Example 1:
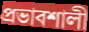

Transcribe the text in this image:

প্ৰভাবশালী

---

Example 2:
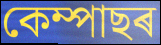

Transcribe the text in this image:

কেম্পাছৰ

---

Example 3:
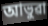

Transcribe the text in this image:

আভুৱা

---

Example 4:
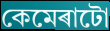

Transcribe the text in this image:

কেমেৰাটো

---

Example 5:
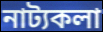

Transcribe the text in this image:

নাট্যকলা